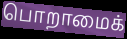
பொறாமைக்